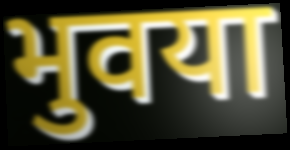
भुवया